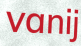
vanij